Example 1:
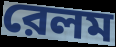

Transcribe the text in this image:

রেলম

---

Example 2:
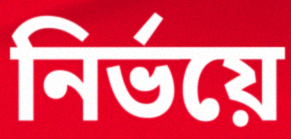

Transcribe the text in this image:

নির্ভয়ে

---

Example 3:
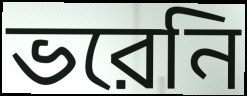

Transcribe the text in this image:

ভরেনি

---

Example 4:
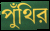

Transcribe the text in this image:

পুঁথির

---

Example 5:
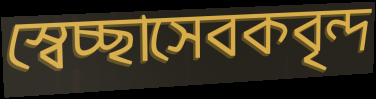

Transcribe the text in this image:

স্বেচ্ছাসেবকবৃন্দ